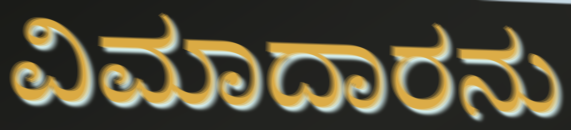
ವಿಮಾದಾರನು